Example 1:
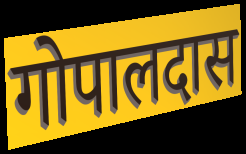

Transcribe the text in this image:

गोपालदास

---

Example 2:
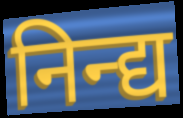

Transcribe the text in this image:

निन्द्य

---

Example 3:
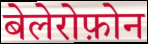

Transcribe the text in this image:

बेलेरोफ़ोन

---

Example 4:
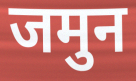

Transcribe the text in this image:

जमुन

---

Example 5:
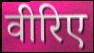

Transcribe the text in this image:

वीरिए